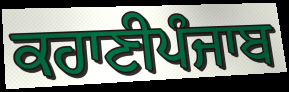
ਕਹਾਣੀਪੰਜਾਬ